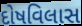
દોષવિલાસ